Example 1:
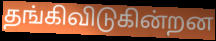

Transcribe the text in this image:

தங்கிவிடுகின்றன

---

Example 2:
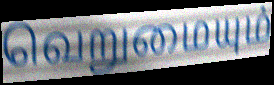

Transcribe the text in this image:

வெறுமையும்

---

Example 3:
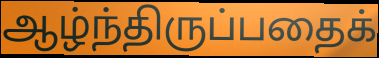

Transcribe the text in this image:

ஆழ்ந்திருப்பதைக்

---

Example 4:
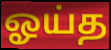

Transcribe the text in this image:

ஓய்த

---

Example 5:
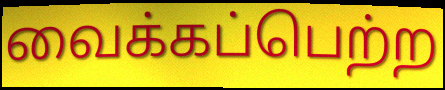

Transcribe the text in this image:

வைக்கப்பெற்ற